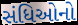
સંધિઓનો